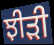
ਝੀੜੀ